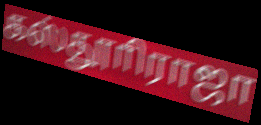
கஸ்தூரிராஜா